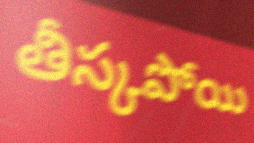
తీస్కపోయి